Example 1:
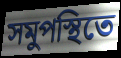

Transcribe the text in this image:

সমুপস্থিতে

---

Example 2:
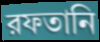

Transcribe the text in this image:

রফতানি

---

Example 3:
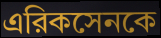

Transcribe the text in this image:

এরিকসেনকে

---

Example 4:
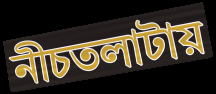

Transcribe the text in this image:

নীচতলাটায়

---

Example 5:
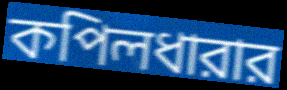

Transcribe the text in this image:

কপিলধারার